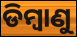
ଡିମ୍ବାଣୁ